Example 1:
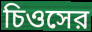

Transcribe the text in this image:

চিওসের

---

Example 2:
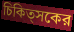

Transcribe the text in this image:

চিকিত্সকের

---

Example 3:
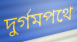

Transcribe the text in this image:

দুর্গমপথে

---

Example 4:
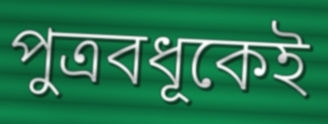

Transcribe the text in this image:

পুত্রবধূকেই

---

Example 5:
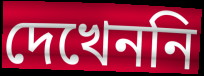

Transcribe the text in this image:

দেখেননি